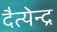
दैत्येन्द्र